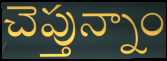
చెప్తున్నాం